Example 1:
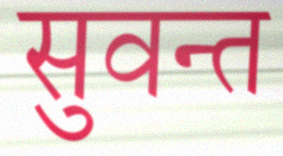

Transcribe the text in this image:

सुवन्त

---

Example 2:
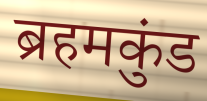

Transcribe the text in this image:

ब्रहमकुंड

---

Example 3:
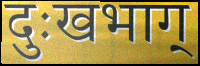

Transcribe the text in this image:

दुःखभाग्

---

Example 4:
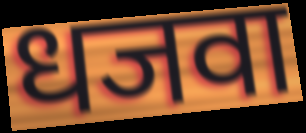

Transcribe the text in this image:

धजवा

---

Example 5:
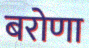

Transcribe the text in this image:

बरोणा